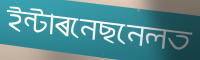
ইন্টাৰনেছনেলত